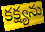
కక్ష్యను